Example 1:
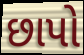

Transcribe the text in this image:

છાપો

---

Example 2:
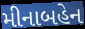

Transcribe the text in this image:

મીનાબહેન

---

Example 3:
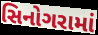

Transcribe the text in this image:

સિનોગરામાં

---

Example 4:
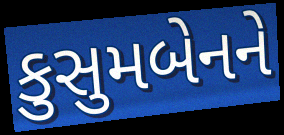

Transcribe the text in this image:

કુસુમબેનને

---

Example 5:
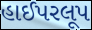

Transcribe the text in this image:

હાઈપરલૂપ